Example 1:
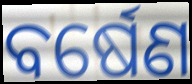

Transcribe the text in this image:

ବର୍ଷେଣ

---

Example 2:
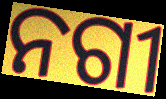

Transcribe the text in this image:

ନଗୀ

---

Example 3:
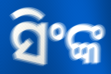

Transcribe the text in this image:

ସିଂଙ୍କ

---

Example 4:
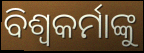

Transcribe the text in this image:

ବିଶ୍ଵକର୍ମାଙ୍କୁ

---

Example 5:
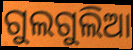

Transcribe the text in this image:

ଗୁଲଗୁଲିଆ